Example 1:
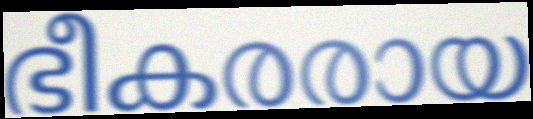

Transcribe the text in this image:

ഭീകരരായ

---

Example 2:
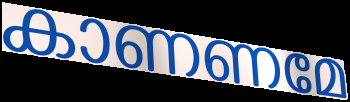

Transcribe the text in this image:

കാണണമേ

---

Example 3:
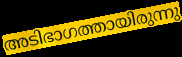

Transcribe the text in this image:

അടിഭാഗത്തായിരുന്നു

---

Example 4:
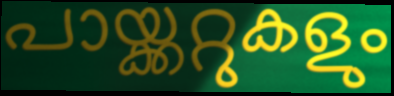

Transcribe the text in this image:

പായ്ക്കറ്റുകളും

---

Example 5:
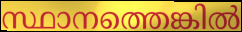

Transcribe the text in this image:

സ്ഥാനത്തെങ്കിൽ